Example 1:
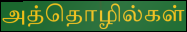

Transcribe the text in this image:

அத்தொழில்கள்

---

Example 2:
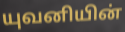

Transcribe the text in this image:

யுவனியின்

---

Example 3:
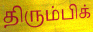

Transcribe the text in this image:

திரும்பிக்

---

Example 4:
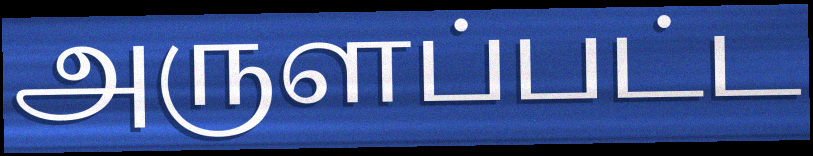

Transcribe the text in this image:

அருளப்பட்ட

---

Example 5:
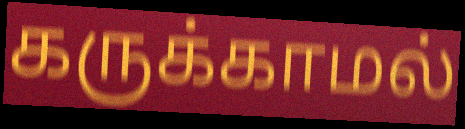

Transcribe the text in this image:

கருக்காமல்